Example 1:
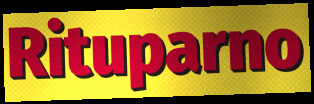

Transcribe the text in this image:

Rituparno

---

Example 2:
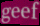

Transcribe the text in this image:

geef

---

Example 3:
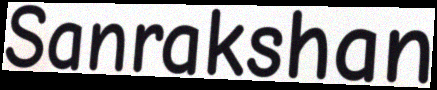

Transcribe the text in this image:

Sanrakshan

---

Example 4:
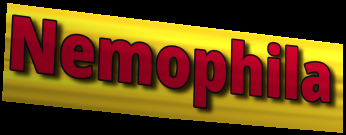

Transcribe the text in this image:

Nemophila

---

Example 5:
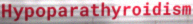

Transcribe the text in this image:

Hypoparathyroidism